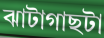
ঝাটাগাছটা